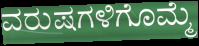
ವರುಷಗಳಿಗೊಮ್ಮೆ